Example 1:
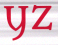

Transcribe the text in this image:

yz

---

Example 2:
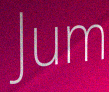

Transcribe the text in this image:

Jum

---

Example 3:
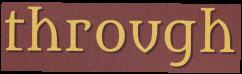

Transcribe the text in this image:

through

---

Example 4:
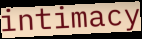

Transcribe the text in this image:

intimacy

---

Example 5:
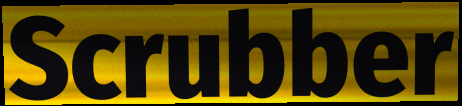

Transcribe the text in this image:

Scrubber